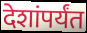
देशांपर्यंत